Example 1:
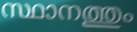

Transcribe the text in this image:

സ്ഥാനത്തും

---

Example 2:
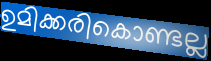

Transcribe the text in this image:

ഉമിക്കരികൊണ്ടല്ല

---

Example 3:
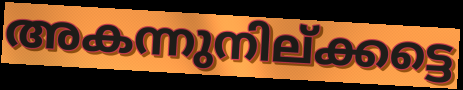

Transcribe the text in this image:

അകന്നുനില്ക്കട്ടെ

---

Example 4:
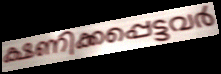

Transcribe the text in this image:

ക്ഷണിക്കപ്പെട്ടവർ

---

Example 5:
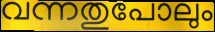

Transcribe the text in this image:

വന്നതുപോലും